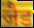
जैड